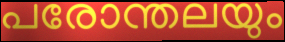
പരോന്തലയും